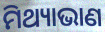
ମିଥ୍ୟାଭାଣ